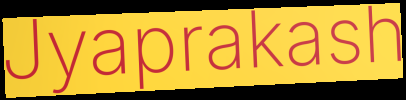
Jyaprakash